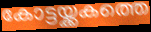
കോട്ടയ്ക്കകത്തെ